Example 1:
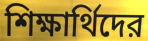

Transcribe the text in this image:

শিক্ষার্থিদের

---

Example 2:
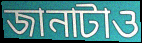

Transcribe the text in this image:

জানাটাও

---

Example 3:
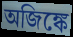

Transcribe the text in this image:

অজিঙ্কে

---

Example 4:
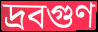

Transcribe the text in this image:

দ্রবগুণ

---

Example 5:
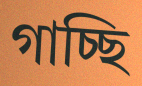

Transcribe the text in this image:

গাচ্ছি